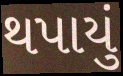
થપાયું